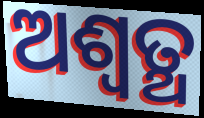
ଅଶ୍ଵତ୍ଥ